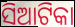
ସିଆଟିକା